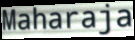
Maharaja